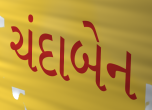
ચંદાબેન